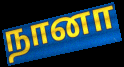
நானா